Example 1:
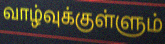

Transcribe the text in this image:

வாழ்வுக்குள்ளும்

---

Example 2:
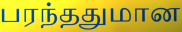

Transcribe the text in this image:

பரந்ததுமான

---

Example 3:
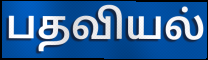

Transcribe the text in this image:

பதவியல்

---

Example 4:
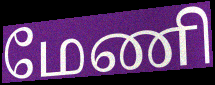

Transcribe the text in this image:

மேணி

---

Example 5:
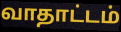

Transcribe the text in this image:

வாதாட்டம்